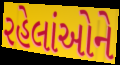
રહેલાંઓને